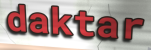
daktar